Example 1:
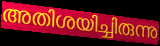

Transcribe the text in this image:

അതിശയിച്ചിരുന്നു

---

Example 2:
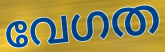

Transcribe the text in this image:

വേഗത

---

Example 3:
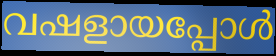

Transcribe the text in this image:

വഷളായപ്പോൾ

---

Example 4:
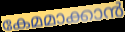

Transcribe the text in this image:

കേമമാക്കാൻ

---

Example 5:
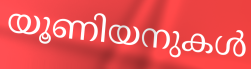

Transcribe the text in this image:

യൂണിയനുകൾ